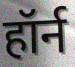
हॉर्न